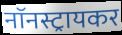
नॉनस्ट्रायकर